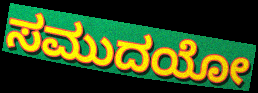
ಸಮುದಯೋ